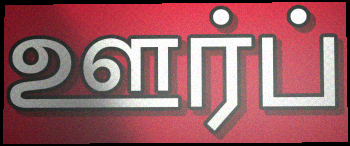
ஊர்ப்